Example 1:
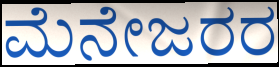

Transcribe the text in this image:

ಮೆನೇಜರರ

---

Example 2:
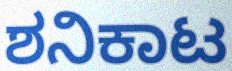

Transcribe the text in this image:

ಶನಿಕಾಟ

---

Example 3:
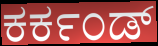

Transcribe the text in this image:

ಕರ್ಕಂಡ್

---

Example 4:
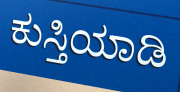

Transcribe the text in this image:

ಕುಸ್ತಿಯಾಡಿ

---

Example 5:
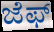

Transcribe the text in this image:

ಜೆಫ್